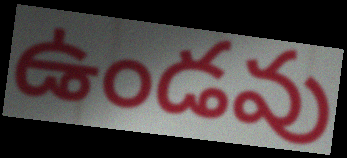
ఉండవు